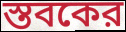
স্তবকের